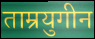
ताम्रयुगीन